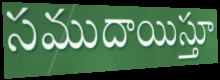
సముదాయిస్తూ